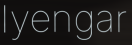
Iyengar